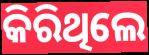
କିରିଥିଲେ